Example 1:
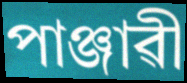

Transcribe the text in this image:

পাঞ্জাৱী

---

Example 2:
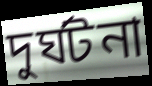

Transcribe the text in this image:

দুৰ্ঘটনা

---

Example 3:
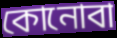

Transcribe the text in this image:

কোনোবা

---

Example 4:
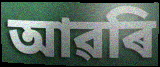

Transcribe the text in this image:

আৱৰি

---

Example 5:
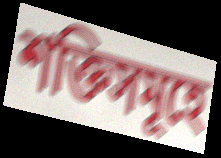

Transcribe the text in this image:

শক্তিসমূহে